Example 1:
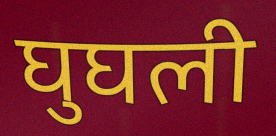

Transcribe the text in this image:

घुघली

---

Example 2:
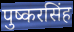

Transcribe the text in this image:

पुष्करसिंह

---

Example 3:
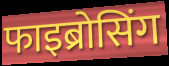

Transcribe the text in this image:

फाइब्रोसिंग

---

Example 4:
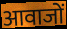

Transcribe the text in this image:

आवाजों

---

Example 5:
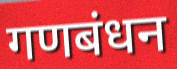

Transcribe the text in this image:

गणबंधन